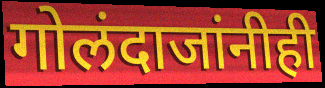
गोलंदाजांनीही